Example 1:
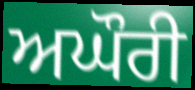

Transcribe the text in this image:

ਅਘੌਰੀ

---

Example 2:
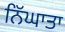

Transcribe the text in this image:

ਨਿੱਘਾਤਾ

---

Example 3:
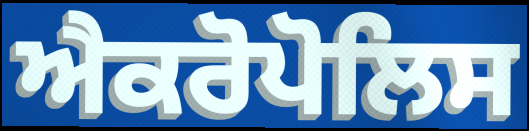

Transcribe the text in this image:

ਐਕਰੋਪੋਲਿਸ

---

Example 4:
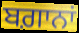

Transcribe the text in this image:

ਬਗ਼ਾਨਾਂ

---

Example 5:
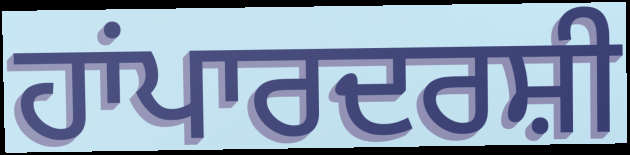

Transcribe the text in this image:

ਹਾਂਪਾਰਦਰਸ਼ੀ